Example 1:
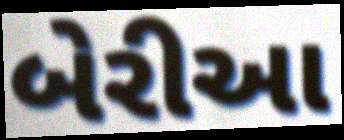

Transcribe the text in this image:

બેરીઆ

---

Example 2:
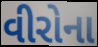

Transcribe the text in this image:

વીરોના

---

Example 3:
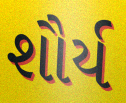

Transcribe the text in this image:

શૌર્ય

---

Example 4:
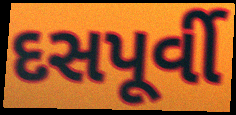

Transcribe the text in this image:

દસપૂર્વી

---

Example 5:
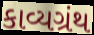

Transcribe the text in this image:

કાવ્યગ્રંથ